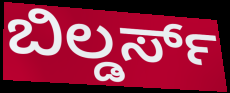
ಬಿಲ್ಡರ್ಸ್